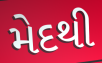
મેદથી